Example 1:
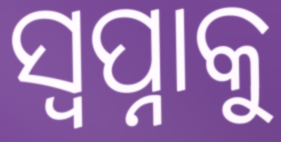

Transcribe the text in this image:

ସ୍ୱପ୍ନାକୁ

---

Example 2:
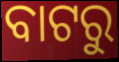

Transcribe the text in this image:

ବାଟରୁ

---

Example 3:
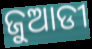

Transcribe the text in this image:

ଜୁଆଡୀ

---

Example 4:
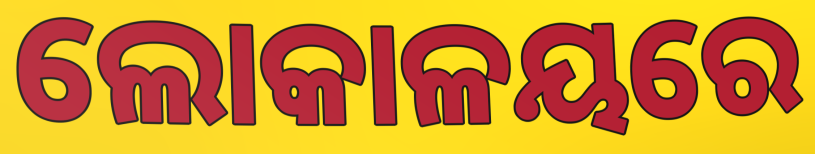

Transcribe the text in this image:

ଲୋକାଳୟରେ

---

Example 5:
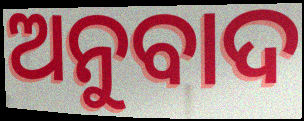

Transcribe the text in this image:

ଅନୁବାଦ